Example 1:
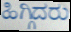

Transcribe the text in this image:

ಹಿಗ್ಗಿದರು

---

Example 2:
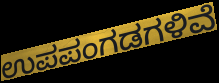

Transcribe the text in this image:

ಉಪಪಂಗಡಗಳಿವೆ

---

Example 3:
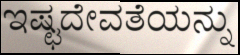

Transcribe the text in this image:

ಇಷ್ಟದೇವತೆಯನ್ನು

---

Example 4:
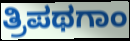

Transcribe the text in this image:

ತ್ರಿಪಥಗಾಂ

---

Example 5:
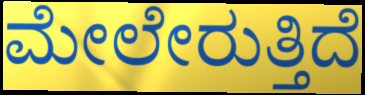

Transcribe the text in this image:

ಮೇಲೇರುತ್ತಿದೆ